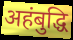
अहंबुद्धि